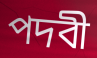
পদবী